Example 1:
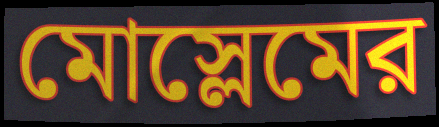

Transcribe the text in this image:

মোস্লেমের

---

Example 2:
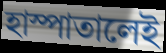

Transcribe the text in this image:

হাস্পাতালেই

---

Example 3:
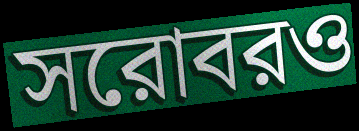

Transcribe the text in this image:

সরোবরও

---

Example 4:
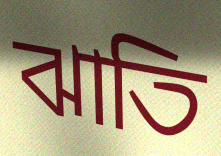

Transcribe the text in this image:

ঝাতি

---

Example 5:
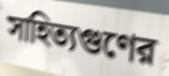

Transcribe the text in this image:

সাহিত্যগুণের